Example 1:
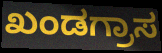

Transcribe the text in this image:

ಖಂಡಗ್ರಾಸ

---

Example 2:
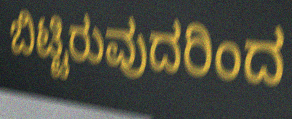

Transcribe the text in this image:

ಬಿಟ್ಟಿರುವುದರಿಂದ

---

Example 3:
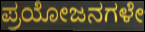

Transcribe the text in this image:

ಪ್ರಯೋಜನಗಳೇ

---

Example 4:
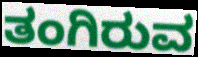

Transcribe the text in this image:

ತಂಗಿರುವ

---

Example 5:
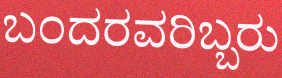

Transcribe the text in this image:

ಬಂದರವರಿಬ್ಬರು